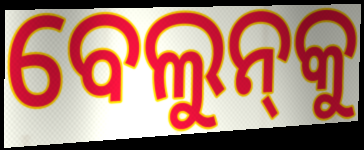
ବେଲୁନ୍‌କୁ